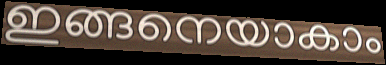
ഇങ്ങനെയാകാം